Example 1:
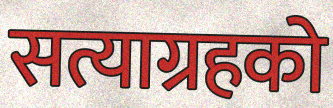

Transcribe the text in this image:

सत्याग्रहको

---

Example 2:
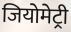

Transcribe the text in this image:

जियोमेट्री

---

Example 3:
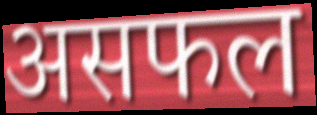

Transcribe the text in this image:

असफल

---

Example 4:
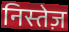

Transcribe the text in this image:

निस्तेज़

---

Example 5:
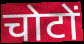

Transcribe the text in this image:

चोटों